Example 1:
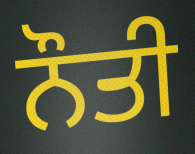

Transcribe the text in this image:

ਨੌਤੀ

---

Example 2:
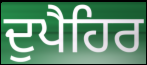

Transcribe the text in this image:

ਦੁਪੈਹਿਰ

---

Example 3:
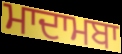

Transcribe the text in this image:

ਮਾਦਾਮਬਾ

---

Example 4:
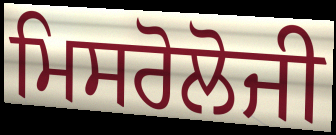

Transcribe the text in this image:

ਮਿਸਰੋਲੋਜੀ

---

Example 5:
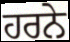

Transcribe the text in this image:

ਹਰਨੇ